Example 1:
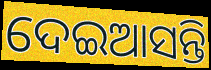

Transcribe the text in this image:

ଦେଇଆସନ୍ତି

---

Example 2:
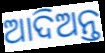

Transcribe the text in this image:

ଆଦିଅନ୍ତ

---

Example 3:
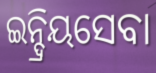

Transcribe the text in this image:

ଇନ୍ଦ୍ରିୟସେବା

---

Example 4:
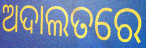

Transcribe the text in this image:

ଅଦାଲତରେ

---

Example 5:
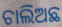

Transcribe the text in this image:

ଚାଲିଅଛ